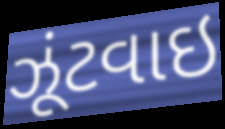
ઝૂંટવાઇ